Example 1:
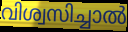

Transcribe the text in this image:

വിശ്വസിച്ചാൽ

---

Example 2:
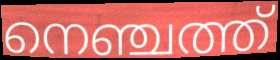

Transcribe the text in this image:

നെഞ്ചത്ത്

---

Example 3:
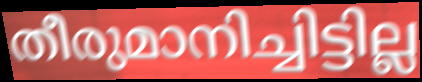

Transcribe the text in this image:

തീരുമാനിച്ചിട്ടില്ല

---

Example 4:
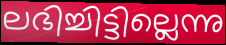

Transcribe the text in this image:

ലഭിച്ചിട്ടില്ലെന്നു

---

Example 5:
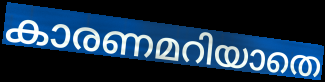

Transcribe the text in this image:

കാരണമറിയാതെ